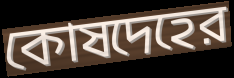
কোষদেহের